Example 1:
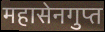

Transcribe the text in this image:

महासेनगुप्त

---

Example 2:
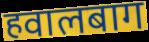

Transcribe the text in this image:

हवालबाग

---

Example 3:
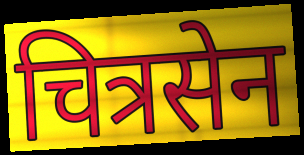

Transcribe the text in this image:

चित्रसेन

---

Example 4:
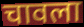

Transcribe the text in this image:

चावला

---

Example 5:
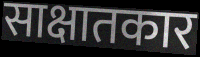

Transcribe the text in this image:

साक्षातकार